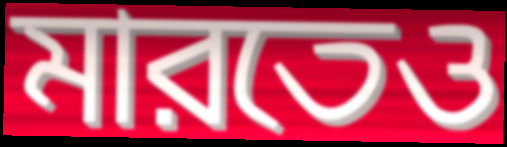
মারতেও